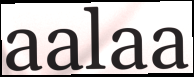
aalaa